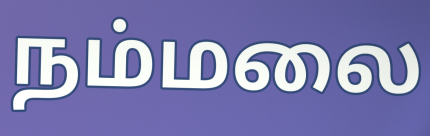
நம்மலை